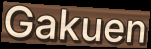
Gakuen